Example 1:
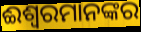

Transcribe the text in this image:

ଈଶ୍ୱରମାନଙ୍କର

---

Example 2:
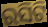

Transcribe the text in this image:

ରସିଟି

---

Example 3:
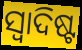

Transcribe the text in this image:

ସ୍ବାଦିଷ୍ଟ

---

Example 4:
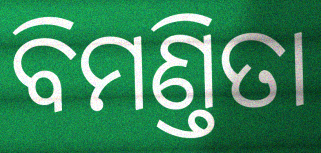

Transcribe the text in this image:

ବିମଣ୍ତିତା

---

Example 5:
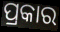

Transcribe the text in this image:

ପ୍ରକାର